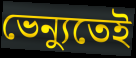
ভেন্যুতেই